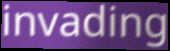
invading